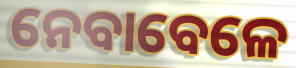
ନେବାବେଳେ